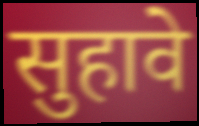
सुहावे